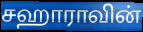
சஹாராவின்